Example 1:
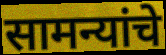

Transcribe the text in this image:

सामन्यांचे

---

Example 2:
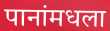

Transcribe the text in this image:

पानांमधला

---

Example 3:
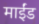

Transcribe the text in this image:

माईंड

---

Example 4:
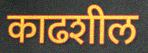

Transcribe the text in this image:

काढशील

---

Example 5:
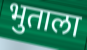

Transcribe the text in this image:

भुताला